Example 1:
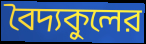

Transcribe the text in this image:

বৈদ্যকুলের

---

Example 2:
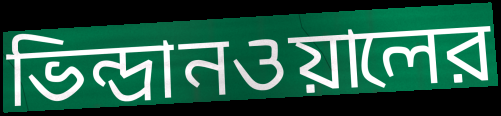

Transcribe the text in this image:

ভিন্দ্রানওয়ালের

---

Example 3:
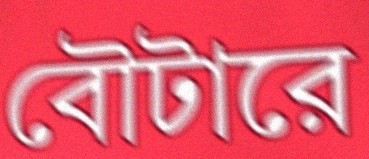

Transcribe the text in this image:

বৌটারে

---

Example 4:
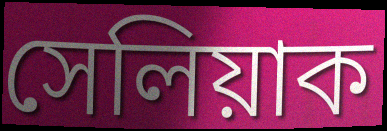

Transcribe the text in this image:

সেলিয়াক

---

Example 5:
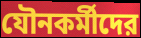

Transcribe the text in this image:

যৌনকর্মীদের